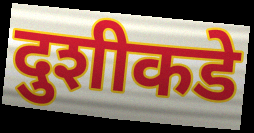
दुशीकडे